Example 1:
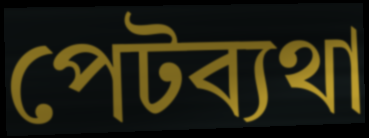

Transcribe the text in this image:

পেটব্যথা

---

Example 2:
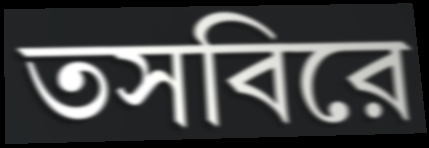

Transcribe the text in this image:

তসবিরে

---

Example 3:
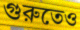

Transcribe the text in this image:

গুরুতেও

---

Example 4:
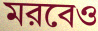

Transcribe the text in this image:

মরবেও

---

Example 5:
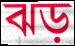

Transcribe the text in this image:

ঝড়